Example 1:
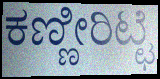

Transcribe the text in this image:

ಕಣ್ಣೀರಿಟ್ಟೆ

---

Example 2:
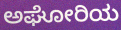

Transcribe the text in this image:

ಅಘೋರಿಯ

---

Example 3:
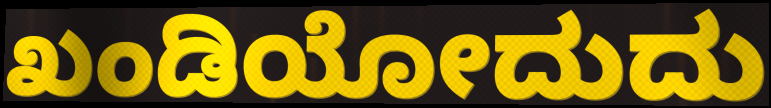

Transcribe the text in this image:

ಖಂಡಿಯೋದುದು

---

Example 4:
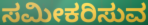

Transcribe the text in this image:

ಸಮೀಕರಿಸುವ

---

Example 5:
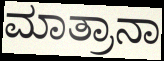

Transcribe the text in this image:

ಮಾತ್ರಾನಾ